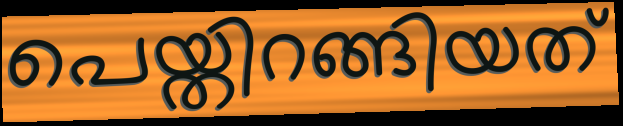
പെയ്തിറങ്ങിയത്